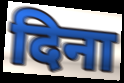
दिना